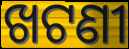
ଖଟଣୀ